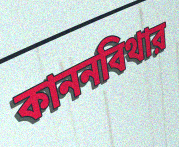
কাননবিথার